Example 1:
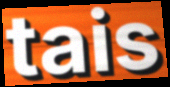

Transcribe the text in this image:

tais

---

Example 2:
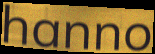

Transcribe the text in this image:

hanno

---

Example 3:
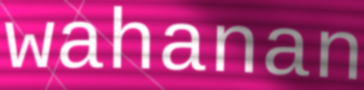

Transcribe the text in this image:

wahanan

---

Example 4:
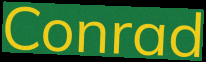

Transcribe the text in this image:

Conrad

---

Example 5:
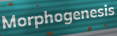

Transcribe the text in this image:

Morphogenesis